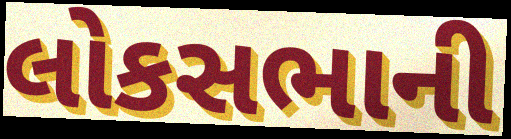
લોકસભાની